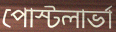
পোস্টলার্ভা